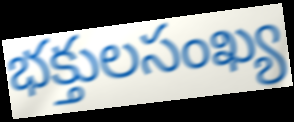
భక్తులసంఖ్య